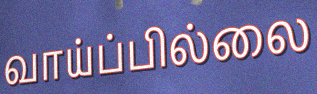
வாய்ப்பில்லை